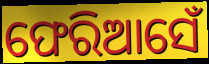
ଫେରିଆସେଁ